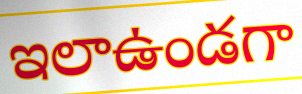
ఇలాఉండగా